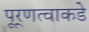
पूर्णत्वाकडे